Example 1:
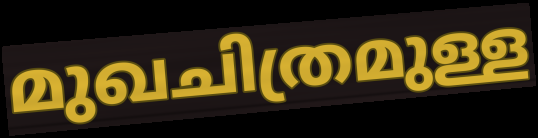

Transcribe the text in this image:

മുഖചിത്രമുള്ള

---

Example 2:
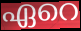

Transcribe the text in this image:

ഏറെ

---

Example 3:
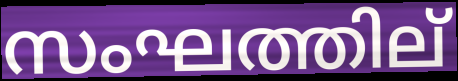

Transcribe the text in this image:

സംഘത്തില്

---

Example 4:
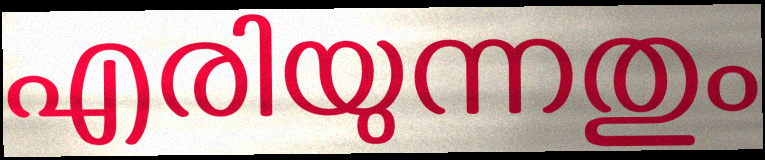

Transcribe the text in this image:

എരിയുന്നതും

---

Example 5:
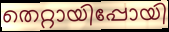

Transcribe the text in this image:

തെറ്റായിപ്പോയി